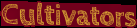
Cultivators